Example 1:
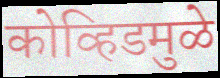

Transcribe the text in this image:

कोव्हिडमुळे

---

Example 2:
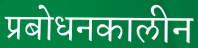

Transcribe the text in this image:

प्रबोधनकालीन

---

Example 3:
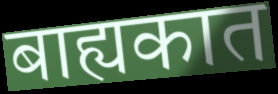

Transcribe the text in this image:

बाह्यकात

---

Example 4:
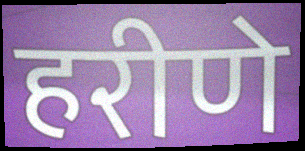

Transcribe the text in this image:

हरीणे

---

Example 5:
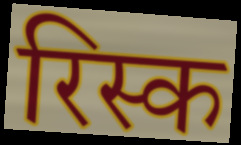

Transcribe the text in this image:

रिस्क